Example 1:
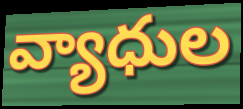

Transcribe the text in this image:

వ్యాధుల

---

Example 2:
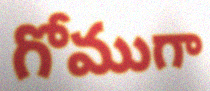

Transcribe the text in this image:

గోముగా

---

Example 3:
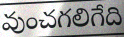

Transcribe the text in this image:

వుంచగలిగేది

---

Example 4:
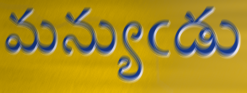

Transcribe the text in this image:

మన్యుఁడు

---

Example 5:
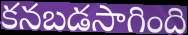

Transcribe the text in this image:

కనబడసాగింది